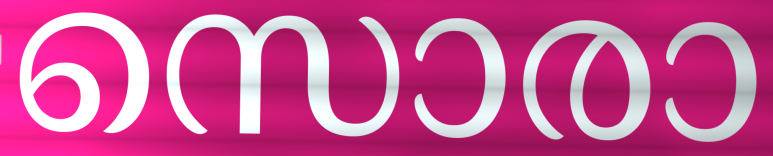
സൊരാ